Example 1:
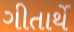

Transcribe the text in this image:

ગીતાર્થે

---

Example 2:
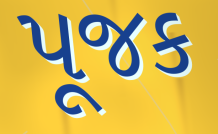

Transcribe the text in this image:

પૂજક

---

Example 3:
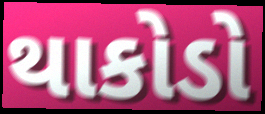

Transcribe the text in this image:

થાકોડો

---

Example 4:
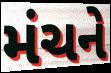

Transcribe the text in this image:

મંચને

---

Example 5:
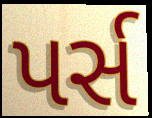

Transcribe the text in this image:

પર્સ